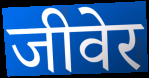
जीवेर